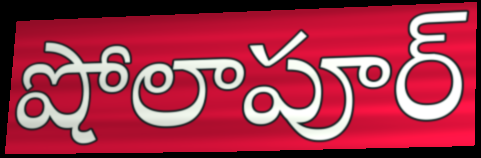
షోలాపూర్